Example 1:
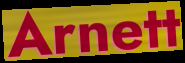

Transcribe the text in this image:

Arnett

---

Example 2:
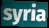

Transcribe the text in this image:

syria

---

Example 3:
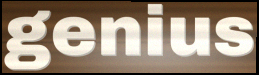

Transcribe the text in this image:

genius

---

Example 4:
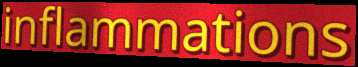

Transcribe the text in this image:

inflammations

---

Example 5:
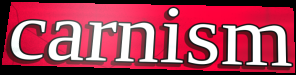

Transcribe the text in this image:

carnism